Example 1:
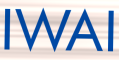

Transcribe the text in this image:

IWAI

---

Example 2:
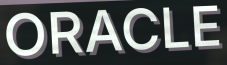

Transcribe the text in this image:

ORACLE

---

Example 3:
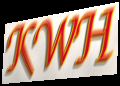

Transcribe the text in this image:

KWH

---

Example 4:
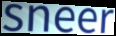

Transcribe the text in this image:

sneer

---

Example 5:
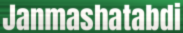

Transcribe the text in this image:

Janmashatabdi